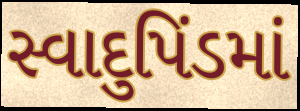
સ્વાદુપિંડમાં